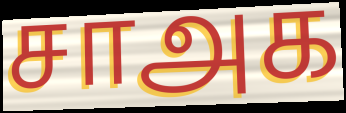
சாஅக